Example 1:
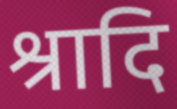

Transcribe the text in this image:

श्रादि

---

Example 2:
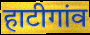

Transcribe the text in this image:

हाटीगांव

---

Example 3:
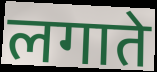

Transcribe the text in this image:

लगाते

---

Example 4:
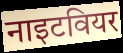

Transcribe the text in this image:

नाइटवियर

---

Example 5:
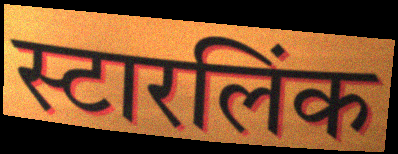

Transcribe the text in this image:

स्‍टारलिंक